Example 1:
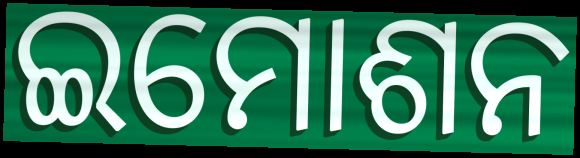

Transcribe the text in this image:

ଇମୋଶନ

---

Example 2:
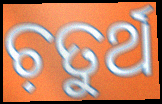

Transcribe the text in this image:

ଚ଼ତୁର୍ଥ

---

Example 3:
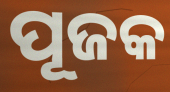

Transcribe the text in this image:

ପୂଜକ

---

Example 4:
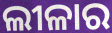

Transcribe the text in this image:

ଲୀଳାର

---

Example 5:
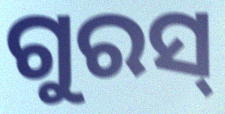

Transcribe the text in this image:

ଗୁରସ୍